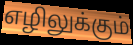
எழிலுக்கும்